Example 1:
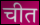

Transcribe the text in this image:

चीत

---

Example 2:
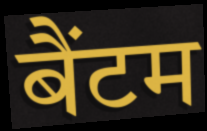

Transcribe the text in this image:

बैंटम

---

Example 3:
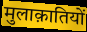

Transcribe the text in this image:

मुलाक़ातियों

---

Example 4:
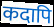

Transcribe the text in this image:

कदापि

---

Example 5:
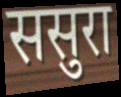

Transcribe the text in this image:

ससुरा